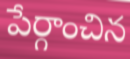
పేర్గాంచిన